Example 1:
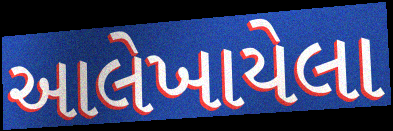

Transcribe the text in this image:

આલેખાયેલા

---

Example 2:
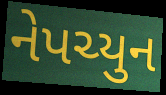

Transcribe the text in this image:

નેપચ્યુન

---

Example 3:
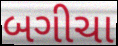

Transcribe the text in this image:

બગીચા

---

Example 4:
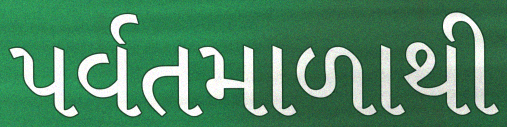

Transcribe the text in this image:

પર્વતમાળાથી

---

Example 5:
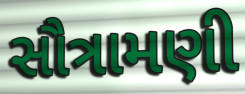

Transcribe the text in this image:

સૌત્રામણી